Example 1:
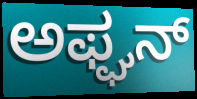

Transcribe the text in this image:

ಅಫ್ಘನ್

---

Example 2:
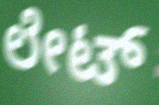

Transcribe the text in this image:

ಲೇಟ್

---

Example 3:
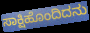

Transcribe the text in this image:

ಸಾಕ್ಷಿಹೊಂದಿದನು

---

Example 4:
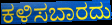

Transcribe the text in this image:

ಕಳಿಸಬಾರದು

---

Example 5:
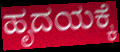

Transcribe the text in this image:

ಹೃದಯಕ್ಕೆ